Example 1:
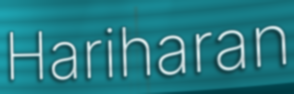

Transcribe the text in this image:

Hariharan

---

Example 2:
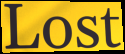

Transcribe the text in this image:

Lost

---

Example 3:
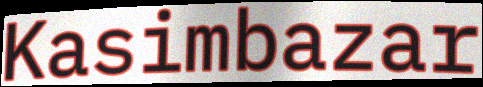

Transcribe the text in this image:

Kasimbazar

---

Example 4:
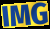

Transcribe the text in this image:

IMG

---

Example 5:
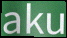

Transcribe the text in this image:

aku